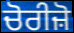
ਚੋਰੀਜ਼ੋ